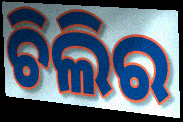
ଚିଲିର